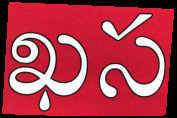
ఖస